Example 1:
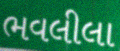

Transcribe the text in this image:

ભવલીલા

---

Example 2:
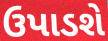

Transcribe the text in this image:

ઉપાડશે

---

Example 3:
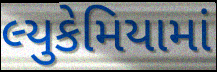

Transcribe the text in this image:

લ્યુકેમિયામાં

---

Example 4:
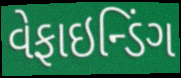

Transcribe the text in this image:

વેફાઇન્ડિંગ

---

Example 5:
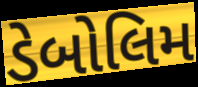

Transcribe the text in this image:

ડેબોલિમ